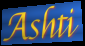
Ashti